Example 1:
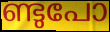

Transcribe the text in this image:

ണ്ടുപോ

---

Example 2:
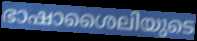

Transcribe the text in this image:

ഭാഷാശൈലിയുടെ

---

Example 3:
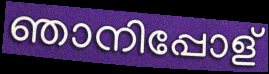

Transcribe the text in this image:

ഞാനിപ്പോള്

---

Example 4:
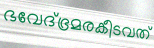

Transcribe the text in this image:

ഭവേദ്ഭ്രമരകീടവത്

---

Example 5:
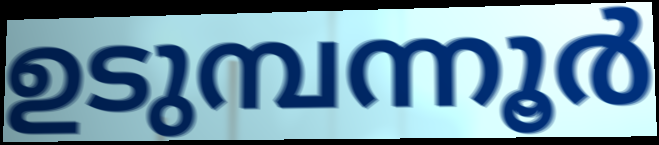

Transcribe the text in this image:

ഉടുമ്പന്നൂർ